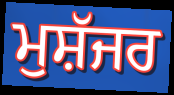
ਮੁਸ਼ੱਜਰ